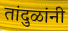
तांदुळांनी